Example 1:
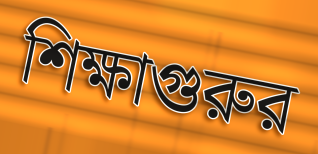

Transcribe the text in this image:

শিক্ষাগুরুর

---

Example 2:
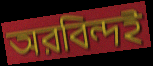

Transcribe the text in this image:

অরবিন্দই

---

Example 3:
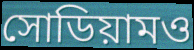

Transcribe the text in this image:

সোডিয়ামও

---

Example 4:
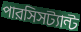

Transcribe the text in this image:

পারসিসট্যান্ট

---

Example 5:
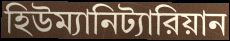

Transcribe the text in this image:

হিউম্যানিট্যারিয়ান